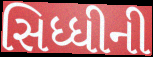
સિધ્ધીની